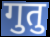
गुतु